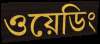
ওয়েডিং